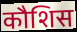
कौशिस